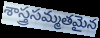
శాస్త్రసమ్మతమైన